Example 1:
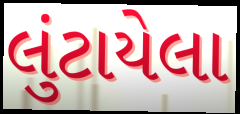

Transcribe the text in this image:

લુંટાયેલા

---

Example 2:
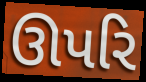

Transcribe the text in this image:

ઊપરિ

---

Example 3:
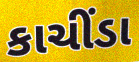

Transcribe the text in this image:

કાચીંડા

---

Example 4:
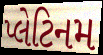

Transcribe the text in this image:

પ્લેટિનમ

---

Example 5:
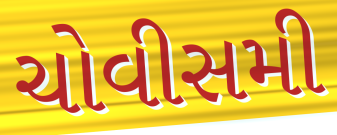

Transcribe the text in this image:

ચોવીસમી